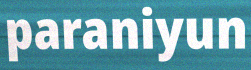
paraniyun